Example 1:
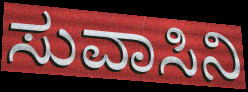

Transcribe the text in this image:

ಸುವಾಸಿನಿ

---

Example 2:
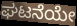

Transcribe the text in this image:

ಘಟನೆಯೇ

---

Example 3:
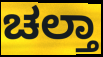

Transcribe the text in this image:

ಚಲ್ತಾ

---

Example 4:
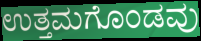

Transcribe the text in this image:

ಉತ್ತಮಗೊಂಡವು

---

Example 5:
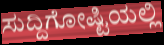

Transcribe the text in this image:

ಸುದ್ದಿಗೋಷ್ಟಿಯಲ್ಲಿ